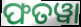
ଫତୱା